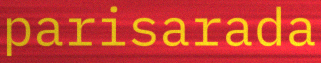
parisarada